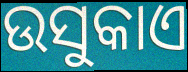
ଉସୁକାଏ